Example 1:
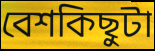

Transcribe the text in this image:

বেশকিছুটা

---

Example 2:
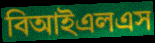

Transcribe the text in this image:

বিআইএলএস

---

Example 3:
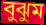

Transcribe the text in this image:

বুঝুম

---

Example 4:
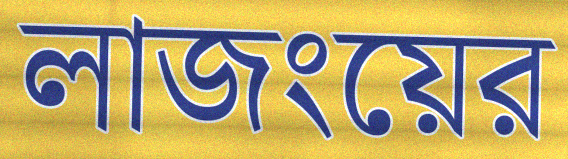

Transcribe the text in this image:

লাজংয়ের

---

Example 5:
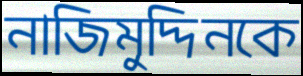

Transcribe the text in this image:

নাজিমুদ্দিনকে